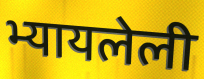
भ्यायलेली